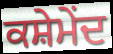
ਕਸ਼ੇਮੇਂਦ